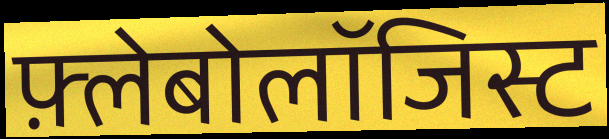
फ़्लेबोलॉजिस्ट